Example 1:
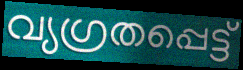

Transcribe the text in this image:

വ്യഗ്രതപ്പെട്ട്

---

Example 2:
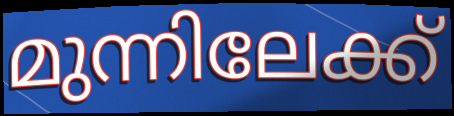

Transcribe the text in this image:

മുന്നിലേക്ക്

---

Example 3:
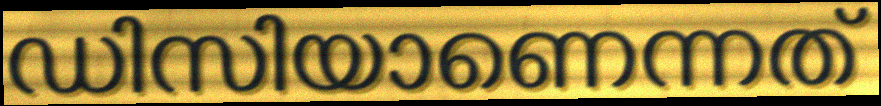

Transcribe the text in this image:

ഡിസിയാണെന്നത്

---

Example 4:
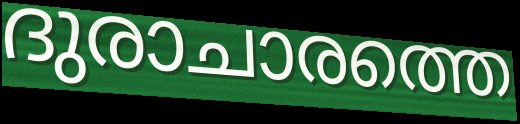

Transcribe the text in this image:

ദുരാചാരത്തെ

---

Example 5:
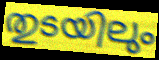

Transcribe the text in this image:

തുടയിലും